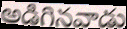
అడిగినవాడు